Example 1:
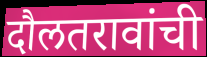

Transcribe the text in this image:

दौलतरावांची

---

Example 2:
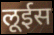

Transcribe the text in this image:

लूईस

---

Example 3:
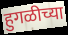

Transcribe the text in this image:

हुगळीच्या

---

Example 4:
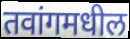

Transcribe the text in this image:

तवांगमधील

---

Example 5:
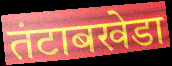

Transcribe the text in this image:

तंटाबखेडा